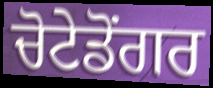
ਚੋਟੇਡੋਂਗਰ